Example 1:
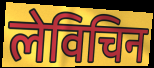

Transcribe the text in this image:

लेविचिन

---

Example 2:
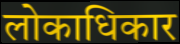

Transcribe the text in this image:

लोकाधिकार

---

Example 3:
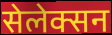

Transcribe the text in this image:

सेलेक्सन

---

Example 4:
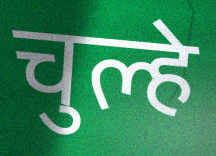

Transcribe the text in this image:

चुल्हे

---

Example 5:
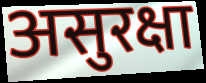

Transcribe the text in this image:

असुरक्षा